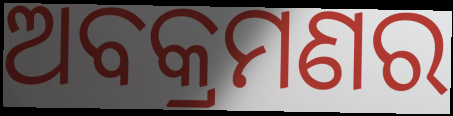
ଅବକ୍ରମଣର